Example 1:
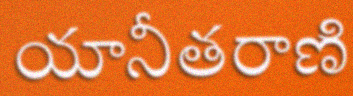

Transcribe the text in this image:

యానీతరాణి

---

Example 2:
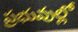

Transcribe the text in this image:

ప్రభువుల్లో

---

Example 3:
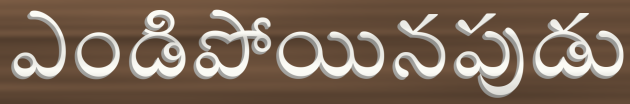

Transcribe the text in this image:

ఎండిపోయినపుడు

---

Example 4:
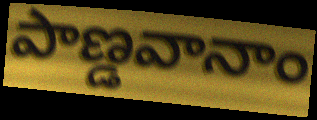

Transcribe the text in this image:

పాణ్డవానాం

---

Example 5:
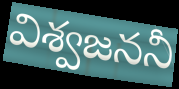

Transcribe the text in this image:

విశ్వజననీ